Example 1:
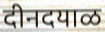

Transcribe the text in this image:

दीनदयाळ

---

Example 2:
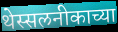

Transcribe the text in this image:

थेस्सलनीकाच्या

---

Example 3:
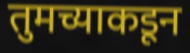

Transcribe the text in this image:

तुमच्याकडून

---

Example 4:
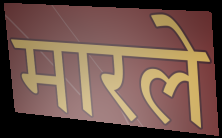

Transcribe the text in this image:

मारले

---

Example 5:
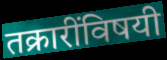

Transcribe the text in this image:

तक्रारींविषयी